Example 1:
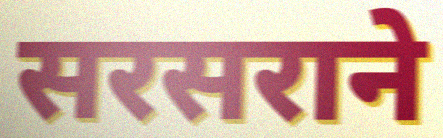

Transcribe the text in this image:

सरसराने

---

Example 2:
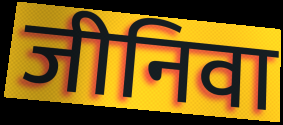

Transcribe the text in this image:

जीनिवा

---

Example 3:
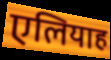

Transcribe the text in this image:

एलियाह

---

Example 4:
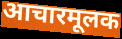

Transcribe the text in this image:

आचारमूलक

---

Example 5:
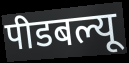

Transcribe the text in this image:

पीडबल्यू